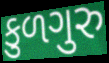
કુળગુરુ